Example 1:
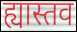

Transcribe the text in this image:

ह्यास्तव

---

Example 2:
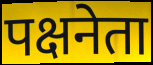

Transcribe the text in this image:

पक्षनेता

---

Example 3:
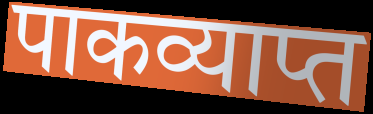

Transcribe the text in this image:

पाकव्याप्त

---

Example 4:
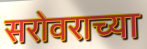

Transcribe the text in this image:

सरोवराच्या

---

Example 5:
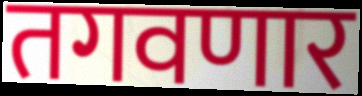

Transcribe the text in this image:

तगवणार